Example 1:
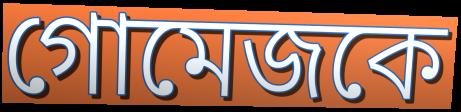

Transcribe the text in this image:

গোমেজকে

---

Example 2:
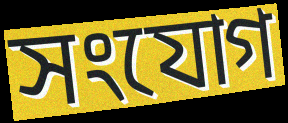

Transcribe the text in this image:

সংযোগ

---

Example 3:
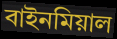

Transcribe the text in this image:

বাইনমিয়াল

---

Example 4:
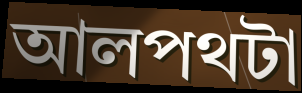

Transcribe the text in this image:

আলপথটা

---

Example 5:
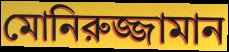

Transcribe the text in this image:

মোনিরুজ্জামান